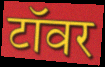
टॉवर